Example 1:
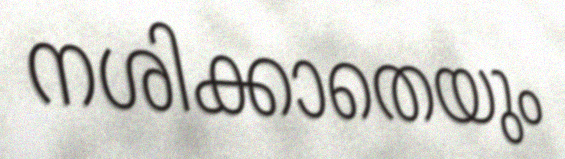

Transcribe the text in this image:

നശിക്കാതെയും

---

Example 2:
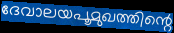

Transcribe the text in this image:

ദേവാലയപൂമുഖത്തിന്റെ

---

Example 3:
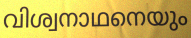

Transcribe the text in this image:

വിശ്വനാഥനെയും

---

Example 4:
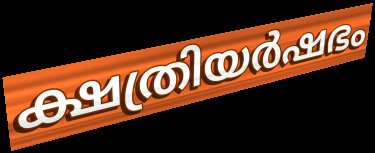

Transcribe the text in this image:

ക്ഷത്രിയർഷഭം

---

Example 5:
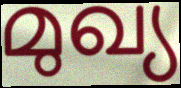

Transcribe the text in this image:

മുഖ്യ